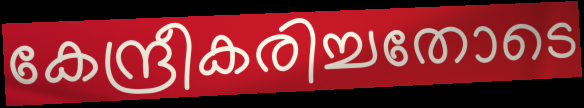
കേന്ദ്രീകരിച്ചതോടെ